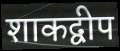
शाकद्वीप